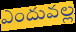
ఎందువల్ల